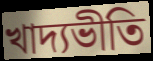
খাদ্যভীতি